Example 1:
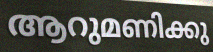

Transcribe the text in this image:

ആറുമണിക്കു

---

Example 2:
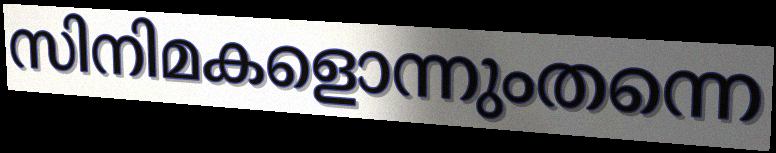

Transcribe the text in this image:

സിനിമകളൊന്നുംതന്നെ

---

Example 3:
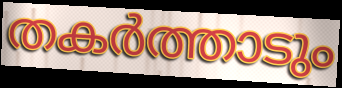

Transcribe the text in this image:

തകർത്താടും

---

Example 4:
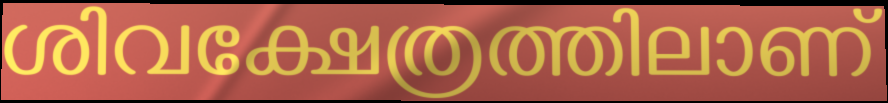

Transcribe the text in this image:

ശിവക്ഷേത്രത്തിലാണ്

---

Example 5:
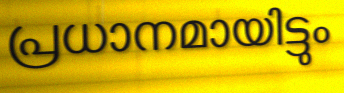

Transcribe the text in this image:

പ്രധാനമായിട്ടും